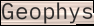
Geophys